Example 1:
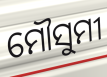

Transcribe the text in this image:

ମୌସୁମୀ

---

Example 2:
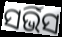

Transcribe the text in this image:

ସର୍ଭିସ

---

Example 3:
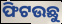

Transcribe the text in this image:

ଫିଟଉଛୁ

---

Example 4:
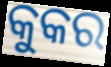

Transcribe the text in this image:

କୁକର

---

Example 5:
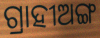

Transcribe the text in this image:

ଗ୍ରାହୀଅଙ୍ଗ